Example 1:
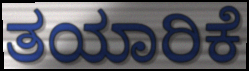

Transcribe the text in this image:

ತಯಾರಿಕೆ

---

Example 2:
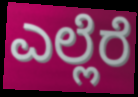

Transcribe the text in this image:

ಎಲ್ಲೆರೆ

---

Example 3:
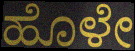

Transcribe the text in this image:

ಹೊಳೇ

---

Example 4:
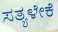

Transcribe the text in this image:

ಸತ್ಯಳೇಕೆ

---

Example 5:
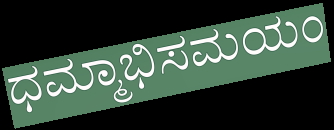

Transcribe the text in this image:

ಧಮ್ಮಾಭಿಸಮಯಂ